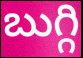
బుగ్గి